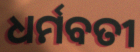
ଧର୍ମବତୀ